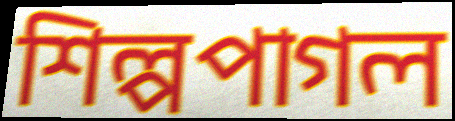
শিল্পপাগল